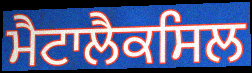
ਮੈਟਾਲੈਕਸਿਲ